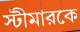
স্টীমারকে